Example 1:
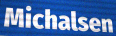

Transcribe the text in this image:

Michalsen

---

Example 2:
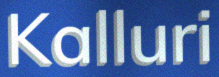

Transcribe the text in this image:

Kalluri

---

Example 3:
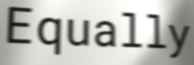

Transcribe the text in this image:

Equally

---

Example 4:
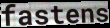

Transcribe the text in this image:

fastens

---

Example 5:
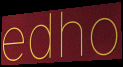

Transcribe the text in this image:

edho